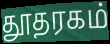
தூதரகம்